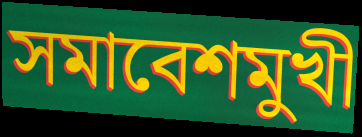
সমাবেশমুখী